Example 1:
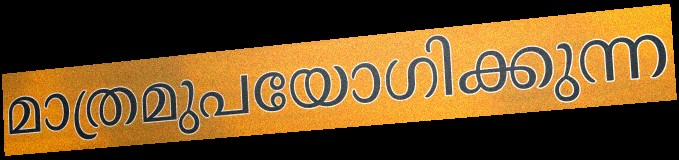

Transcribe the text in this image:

മാത്രമുപയോഗിക്കുന്ന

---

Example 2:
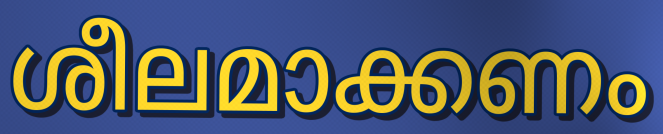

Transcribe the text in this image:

ശീലമാക്കണം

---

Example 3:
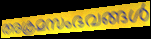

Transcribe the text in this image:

അക്രമസംഭവങ്ങൾ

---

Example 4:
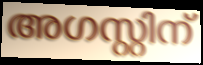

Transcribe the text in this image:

അഗസ്റ്റിന്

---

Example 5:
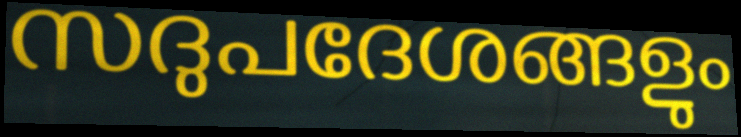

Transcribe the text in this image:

സദുപദേശങ്ങളും